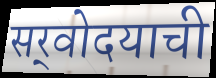
सर्वोदयाची